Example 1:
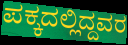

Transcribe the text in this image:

ಪಕ್ಕದಲ್ಲಿದ್ದವರ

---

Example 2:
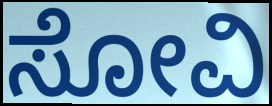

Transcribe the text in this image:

ಸೋವಿ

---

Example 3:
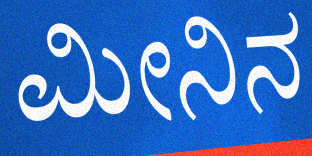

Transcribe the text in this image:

ಮೀನಿನ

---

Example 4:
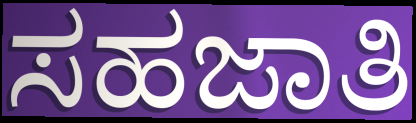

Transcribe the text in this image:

ಸಹಜಾತಿ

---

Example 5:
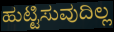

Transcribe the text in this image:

ಹುಟ್ಟಿಸುವುದಿಲ್ಲ